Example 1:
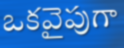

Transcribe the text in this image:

ఒకవైపుగా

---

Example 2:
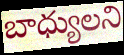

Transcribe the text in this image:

బాధ్యులని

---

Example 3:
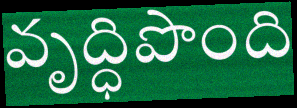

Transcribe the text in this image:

వృద్ధిపొంది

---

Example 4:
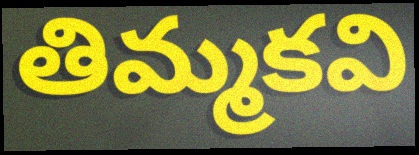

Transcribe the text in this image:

తిమ్మకవి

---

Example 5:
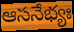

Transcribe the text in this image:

ఆసనేభ్యః